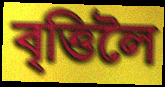
বৃত্তিলৈ